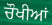
ਚੌਖੀਆਂ